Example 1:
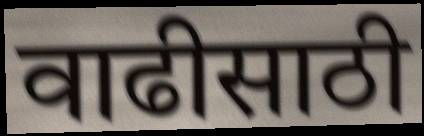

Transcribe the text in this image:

वाढीसाठी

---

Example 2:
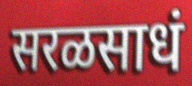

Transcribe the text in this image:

सरळसाधं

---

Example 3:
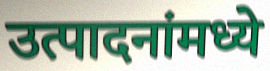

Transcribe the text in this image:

उत्पादनांमध्ये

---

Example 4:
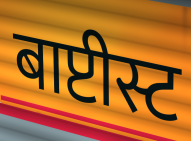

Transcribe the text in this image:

बाप्टीस्ट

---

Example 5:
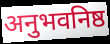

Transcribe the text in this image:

अनुभवनिष्ठ